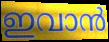
ഇവാൻ